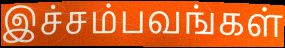
இச்சம்பவங்கள்